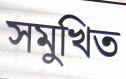
সমুখিত